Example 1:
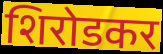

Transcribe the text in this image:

शिरोडकर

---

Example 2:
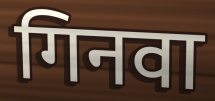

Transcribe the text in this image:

गिनवा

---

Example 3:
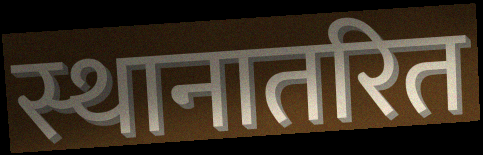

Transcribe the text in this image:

स्थानातरित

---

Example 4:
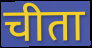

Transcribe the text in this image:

चीता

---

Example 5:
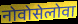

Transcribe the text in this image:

नोवोसेलोवा